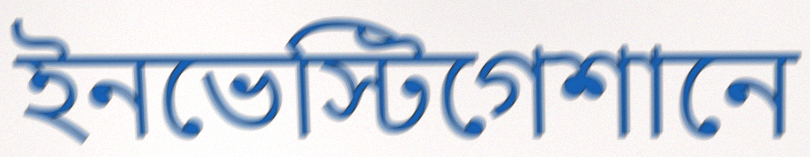
ইনভেস্টিগেশানে